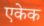
एकेक